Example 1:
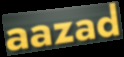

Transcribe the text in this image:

aazad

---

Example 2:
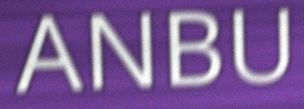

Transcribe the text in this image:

ANBU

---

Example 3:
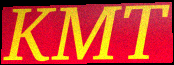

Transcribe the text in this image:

KMT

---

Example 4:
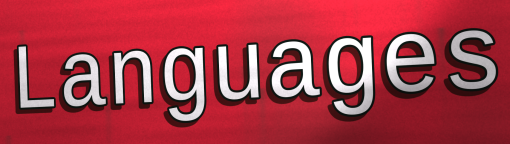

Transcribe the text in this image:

Languages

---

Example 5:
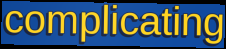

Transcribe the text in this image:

complicating